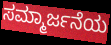
ಸಮ್ಮಾರ್ಜನೆಯ